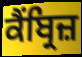
ਕੈਂਬ੍ਰਿਜ਼